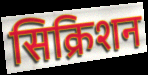
सिक्रिशन